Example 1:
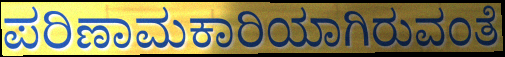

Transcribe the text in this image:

ಪರಿಣಾಮಕಾರಿಯಾಗಿರುವಂತೆ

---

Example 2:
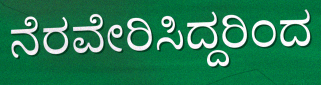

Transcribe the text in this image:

ನೆರವೇರಿಸಿದ್ದರಿಂದ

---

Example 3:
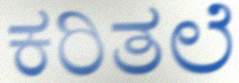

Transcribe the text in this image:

ಕರಿತಲೆ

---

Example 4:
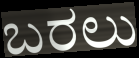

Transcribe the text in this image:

ಬರಲು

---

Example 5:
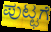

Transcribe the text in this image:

ಪುಟ್ಟಗೆ